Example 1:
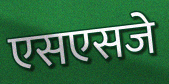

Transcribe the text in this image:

एसएसजे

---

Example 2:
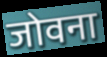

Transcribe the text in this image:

जोवना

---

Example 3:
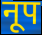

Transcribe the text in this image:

नूप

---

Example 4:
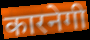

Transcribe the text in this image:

कारनेगी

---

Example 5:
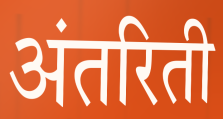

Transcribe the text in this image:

अंतरिती